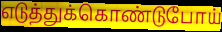
எடுத்துக்கொண்டுபோய்